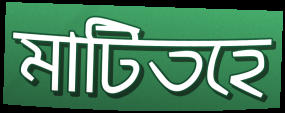
মাটিতহে